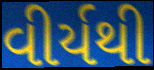
વીર્યથી